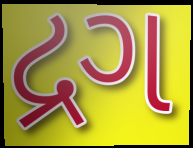
દ્રગ